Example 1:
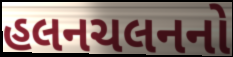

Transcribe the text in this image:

હલનચલનનો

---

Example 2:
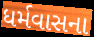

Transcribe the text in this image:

ધર્મવાસના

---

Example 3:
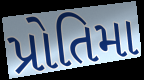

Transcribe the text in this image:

પ્રોતિમા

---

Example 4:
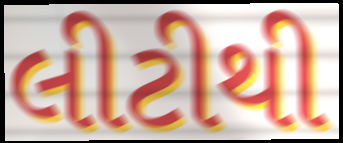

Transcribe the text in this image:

લીટીથી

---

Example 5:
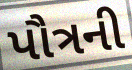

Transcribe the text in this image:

પૌત્રની